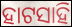
ହାଟସାହି